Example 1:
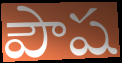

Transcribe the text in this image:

పౌష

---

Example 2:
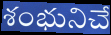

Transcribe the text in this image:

శంభునిచే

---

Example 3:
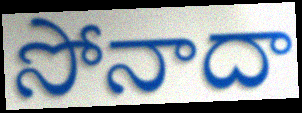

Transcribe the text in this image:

సోనాదా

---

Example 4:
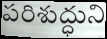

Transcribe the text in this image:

పరిశుద్ధుని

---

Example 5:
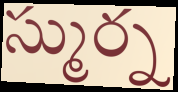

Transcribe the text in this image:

స్ముర్న